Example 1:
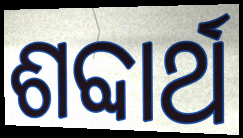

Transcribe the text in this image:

ଶବ୍ଦାର୍ଥ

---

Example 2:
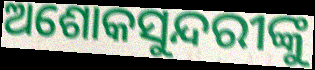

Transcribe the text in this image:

ଅଶୋକସୁନ୍ଦରୀଙ୍କୁ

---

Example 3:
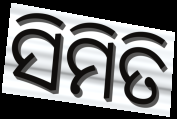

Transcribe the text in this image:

ସିମିତି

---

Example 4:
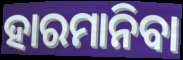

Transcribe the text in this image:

ହାରମାନିବା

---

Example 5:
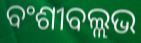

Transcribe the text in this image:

ବଂଶୀବଲ୍ଲଭ